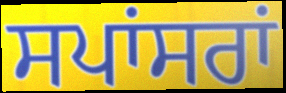
ਸਪਾਂਸਰਾਂ